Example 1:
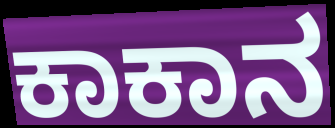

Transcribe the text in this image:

ಕಾಕಾನ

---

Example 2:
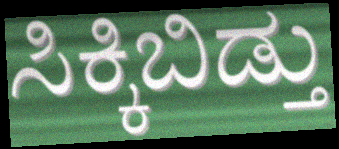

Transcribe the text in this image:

ಸಿಕ್ಕಿಬಿಡ್ತು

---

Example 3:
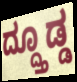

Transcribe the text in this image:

ದ್ದ್ತೂಡ್ಡ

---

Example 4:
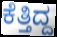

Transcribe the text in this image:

ಕೆತ್ತಿದ್ದ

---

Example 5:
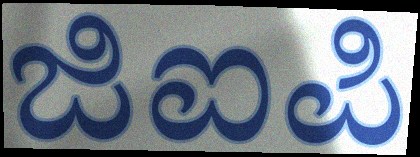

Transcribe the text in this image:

ಜಿಐಪಿ